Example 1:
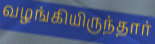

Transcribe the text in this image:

வழங்கியிருந்தார்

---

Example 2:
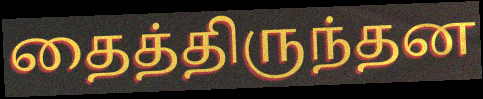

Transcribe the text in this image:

தைத்திருந்தன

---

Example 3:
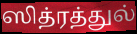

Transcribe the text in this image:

ஸித்ரத்துல்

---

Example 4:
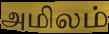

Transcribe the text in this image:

அமிலம்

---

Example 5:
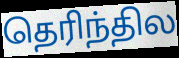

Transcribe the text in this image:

தெரிந்தில